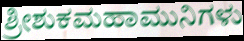
ಶ್ರೀಶುಕಮಹಾಮುನಿಗಳು